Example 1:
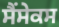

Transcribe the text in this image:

ਸੈਂਸੇਕਸ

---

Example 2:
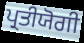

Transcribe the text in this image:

ਪ੍ਰਤੀਯੋਗੀ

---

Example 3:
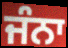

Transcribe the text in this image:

ਜੰਨਾ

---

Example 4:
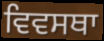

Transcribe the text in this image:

ਵਿਵਸਥਾ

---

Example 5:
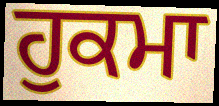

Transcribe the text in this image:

ਹੁਕਮਾ